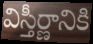
విస్తీర్ణానికి